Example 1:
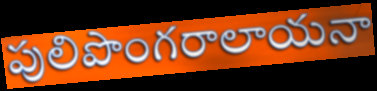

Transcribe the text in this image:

పులిపొంగరాలాయనా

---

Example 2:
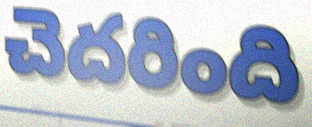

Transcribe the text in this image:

చెదరింది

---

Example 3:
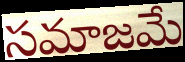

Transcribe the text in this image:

సమాజమే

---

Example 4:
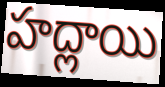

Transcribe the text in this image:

హద్లాయి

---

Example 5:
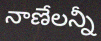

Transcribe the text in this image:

నాణేలన్నీ